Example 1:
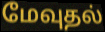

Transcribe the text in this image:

மேவுதல்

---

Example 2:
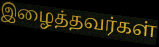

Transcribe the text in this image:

இழைத்தவர்கள்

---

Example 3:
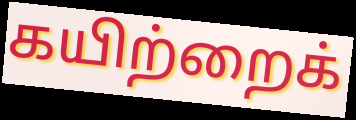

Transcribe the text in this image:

கயிற்றைக்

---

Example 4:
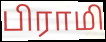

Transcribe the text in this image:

பிராமி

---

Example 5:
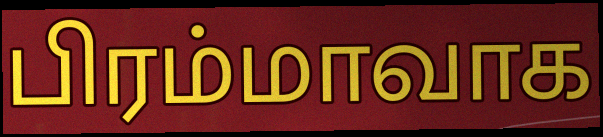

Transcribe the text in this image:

பிரம்மாவாக